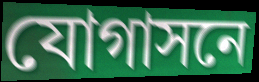
যোগাসনে